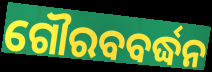
ଗୌରବବର୍ଦ୍ଧନ